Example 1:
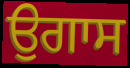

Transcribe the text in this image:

ਉਗਾਸ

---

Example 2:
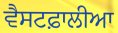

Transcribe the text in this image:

ਵੈਸਟਫ਼ਾਲੀਆ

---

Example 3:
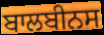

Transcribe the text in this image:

ਬਾਲਬੀਨਸ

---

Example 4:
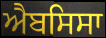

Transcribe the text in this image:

ਐਬਸਿਸਾ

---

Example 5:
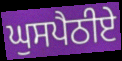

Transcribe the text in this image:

ਘੁਸਪੈਠੀਏ